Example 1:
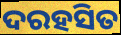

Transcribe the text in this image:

ଦରହସିତ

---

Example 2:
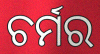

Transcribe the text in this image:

ଚର୍ମର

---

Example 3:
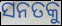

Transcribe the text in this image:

ସନତକୁ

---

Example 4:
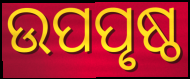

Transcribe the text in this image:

ଉପପୃଷ୍ଠ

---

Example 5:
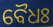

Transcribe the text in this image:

ବୈଧଃ